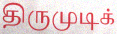
திருமுடிக்